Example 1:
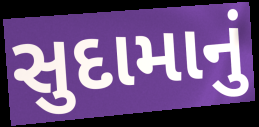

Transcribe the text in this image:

સુદામાનું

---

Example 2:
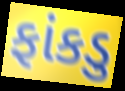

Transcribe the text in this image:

ફાંકડુ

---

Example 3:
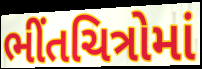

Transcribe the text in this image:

ભીંતચિત્રોમાં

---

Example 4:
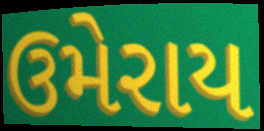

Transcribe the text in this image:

ઉમેરાય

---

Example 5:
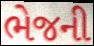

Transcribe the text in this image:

ભેજની